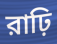
রাঢ়ি